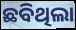
ଛବିଥିଲା